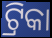
ଟ୍ରିକା